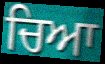
ਚਿਆ